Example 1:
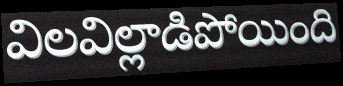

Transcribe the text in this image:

విలవిల్లాడిపోయింది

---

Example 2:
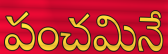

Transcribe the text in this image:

పంచమినే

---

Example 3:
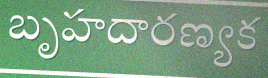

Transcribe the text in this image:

బృహదారణ్యక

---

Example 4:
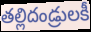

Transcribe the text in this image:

తల్లిదండ్రులకీ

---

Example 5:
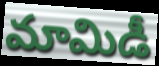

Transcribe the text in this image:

మామిడీ